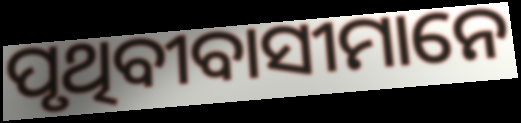
ପୃଥିବୀବାସୀମାନେ